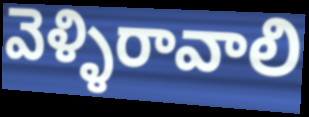
వెళ్ళిరావాలి